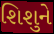
શિશુને